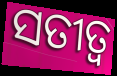
ସତୀତ୍ଵ